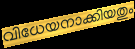
വിധേയനാക്കിയതും